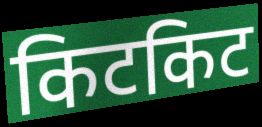
किटकिट